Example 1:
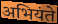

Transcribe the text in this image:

अभियंते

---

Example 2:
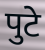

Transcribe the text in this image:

पुटे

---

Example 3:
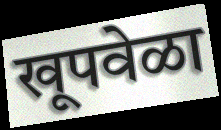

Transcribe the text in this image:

खूपवेळा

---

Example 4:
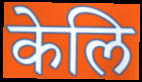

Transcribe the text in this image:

केलि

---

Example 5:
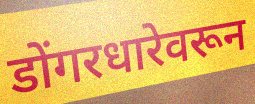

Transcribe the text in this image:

डोंगरधारेवरून